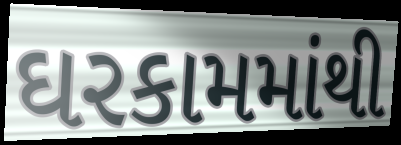
ઘરકામમાંથી